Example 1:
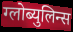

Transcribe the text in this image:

ग्लोब्युलिन्स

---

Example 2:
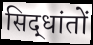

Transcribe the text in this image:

सिद्धांतों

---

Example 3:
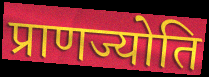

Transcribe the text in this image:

प्राणज्योति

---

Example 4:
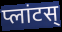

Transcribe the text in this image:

प्लांटस्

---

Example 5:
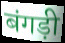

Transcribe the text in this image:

बंगड़ी